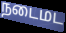
நடைமட